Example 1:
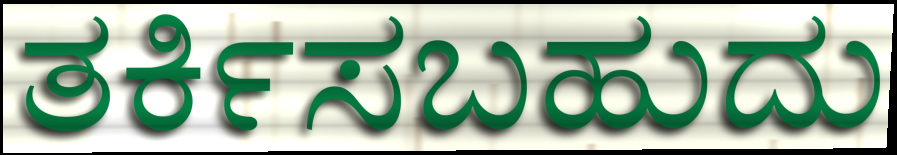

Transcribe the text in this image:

ತರ್ಕಿಸಬಹುದು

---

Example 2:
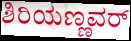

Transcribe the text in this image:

ಶಿರಿಯಣ್ಣವರ್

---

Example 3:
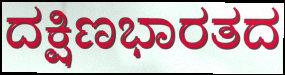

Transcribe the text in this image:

ದಕ್ಷಿಣಭಾರತದ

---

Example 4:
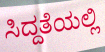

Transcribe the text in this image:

ಸಿದ್ದತೆಯಲ್ಲಿ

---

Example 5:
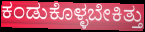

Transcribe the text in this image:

ಕಂಡುಕೊಳ್ಳಬೇಕಿತ್ತು